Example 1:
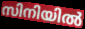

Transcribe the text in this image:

സിനിയിൽ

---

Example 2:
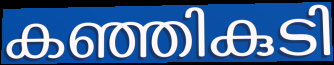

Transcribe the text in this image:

കഞ്ഞികുടി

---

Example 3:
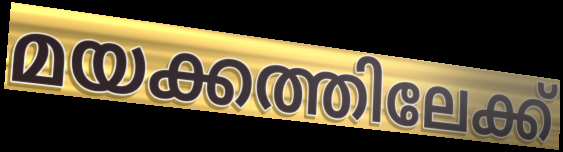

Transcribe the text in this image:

മയക്കത്തിലേക്ക്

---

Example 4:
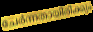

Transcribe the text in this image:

ചേർന്നതായിരിക്കും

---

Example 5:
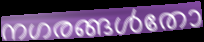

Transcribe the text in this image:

നഗരങ്ങൾതോ